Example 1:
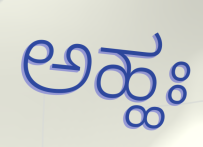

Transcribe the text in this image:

ಅಹ್ಹಃ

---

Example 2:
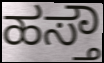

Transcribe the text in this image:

ಹಸ್ತೌ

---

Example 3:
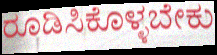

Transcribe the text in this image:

ರೂಡಿಸಿಕೊಳ್ಳಬೇಕು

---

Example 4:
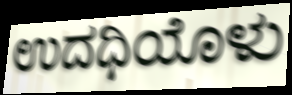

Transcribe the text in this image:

ಉದಧಿಯೊಳು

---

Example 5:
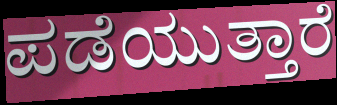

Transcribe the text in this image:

ಪಡೆಯುತ್ತಾರೆ